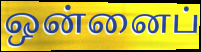
ஒன்னைப்